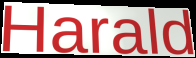
Harald